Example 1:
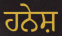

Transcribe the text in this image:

ਹਨੇਸ਼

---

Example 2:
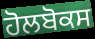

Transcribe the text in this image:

ਹੋਲਬੋਕਸ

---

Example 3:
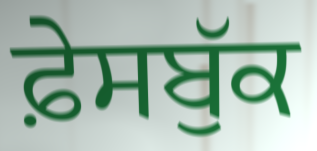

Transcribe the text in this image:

ਫ਼ੇਸਬੁੱਕ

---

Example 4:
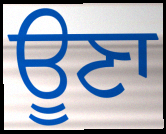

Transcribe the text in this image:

ਊਣਾ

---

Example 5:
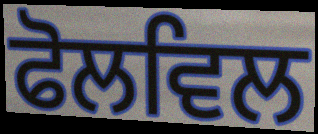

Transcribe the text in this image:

ਫੋਲਵਿਲ